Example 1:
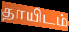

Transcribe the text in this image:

தாயிடம்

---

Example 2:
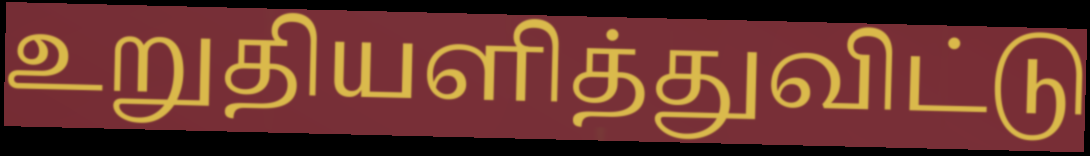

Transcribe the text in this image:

உறுதியளித்துவிட்டு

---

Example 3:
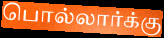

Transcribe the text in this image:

பொல்லார்க்கு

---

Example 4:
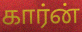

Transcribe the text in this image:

கார்ன்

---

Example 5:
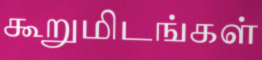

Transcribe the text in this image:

கூறுமிடங்கள்